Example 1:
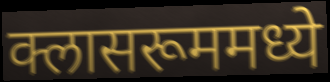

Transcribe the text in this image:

क्लासरूममध्ये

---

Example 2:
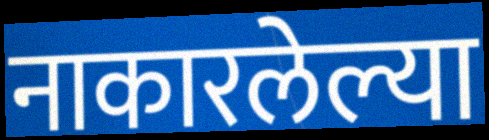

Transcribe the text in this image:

नाकारलेल्या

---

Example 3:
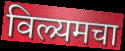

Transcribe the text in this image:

विल्यमचा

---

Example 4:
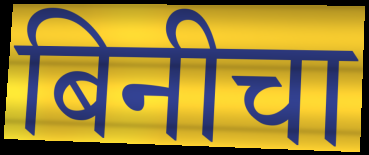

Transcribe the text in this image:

बिनीचा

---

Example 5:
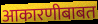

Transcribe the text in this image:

आकारणीबाबत